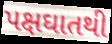
પક્ષઘાતથી